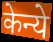
केन्ये